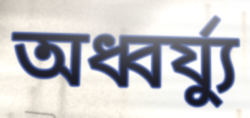
অধ্বর্য্যু